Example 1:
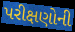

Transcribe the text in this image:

પરીક્ષણોની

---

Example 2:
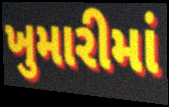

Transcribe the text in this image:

ખુમારીમાં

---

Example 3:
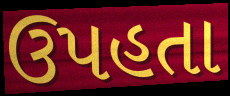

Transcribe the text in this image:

ઉપહતા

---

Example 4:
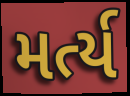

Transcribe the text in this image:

મર્ત્ય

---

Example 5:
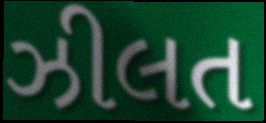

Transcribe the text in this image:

ઝીલત